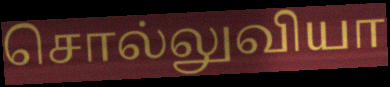
சொல்லுவியா